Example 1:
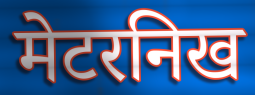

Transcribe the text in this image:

मेटरनिख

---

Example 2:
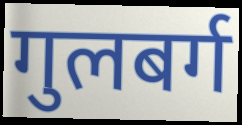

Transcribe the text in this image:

गुलबर्ग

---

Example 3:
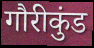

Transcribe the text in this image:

गौरीकुंड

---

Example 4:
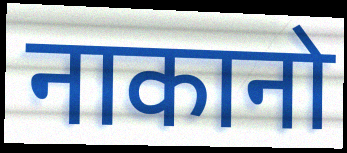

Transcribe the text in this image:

नाकानो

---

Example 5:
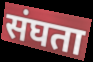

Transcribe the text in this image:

संघता